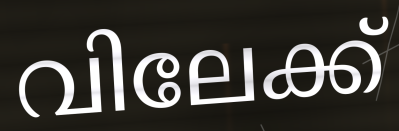
വിലേക്ക്